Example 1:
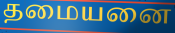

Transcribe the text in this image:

தமையனை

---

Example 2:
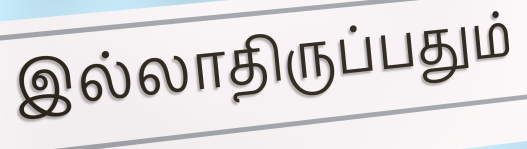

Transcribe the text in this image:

இல்லாதிருப்பதும்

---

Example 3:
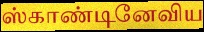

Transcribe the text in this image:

ஸ்காண்டினேவிய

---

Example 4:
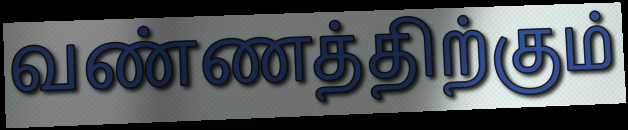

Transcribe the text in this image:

வண்ணத்திற்கும்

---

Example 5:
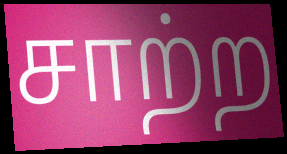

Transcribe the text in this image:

சாற்ற